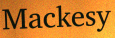
Mackesy